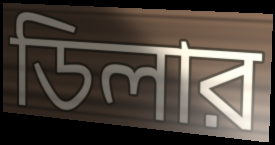
ডিলার